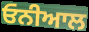
ਓਨੀਆਲ